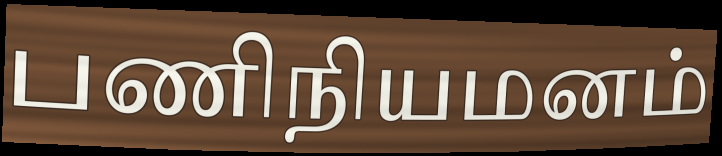
பணிநியமனம்